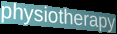
physiotherapy